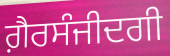
ਗ਼ੈਰਸੰਜੀਦਗੀ